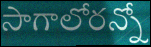
సాగాలోరన్నో